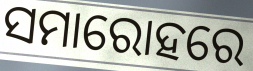
ସମାରୋହରେ